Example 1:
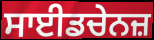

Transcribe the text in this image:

ਸਾਈਡਚੇਨਜ਼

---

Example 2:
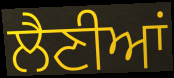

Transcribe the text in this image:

ਲੈਣੀਆਂ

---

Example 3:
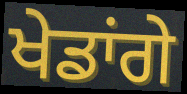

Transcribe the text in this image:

ਖੇਡਾਂਗੇ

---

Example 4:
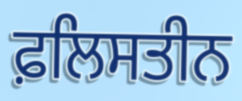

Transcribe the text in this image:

ਫ਼ਲਿਸਤੀਨ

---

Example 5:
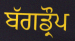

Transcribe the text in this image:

ਬੱਗਡ੍ਰੌਪ